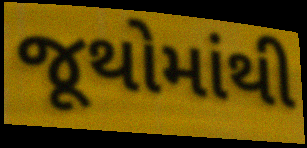
જૂથોમાંથી